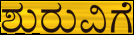
ಶುರುವಿಗೆ